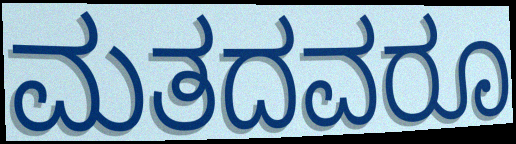
ಮತದವರೂ